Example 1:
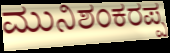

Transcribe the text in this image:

ಮುನಿಶಂಕರಪ್ಪ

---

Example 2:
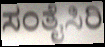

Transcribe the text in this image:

ಸಂತೈಸಿರಿ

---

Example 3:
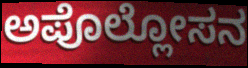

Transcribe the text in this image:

ಅಪೊಲ್ಲೋಸನ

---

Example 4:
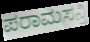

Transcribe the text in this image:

ಪರಾಮಸನ್ತಿ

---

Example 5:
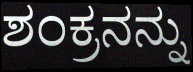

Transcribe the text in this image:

ಶಂಕ್ರನನ್ನು